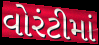
વોરંટીમાં